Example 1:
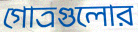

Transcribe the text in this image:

গোত্রগুলোর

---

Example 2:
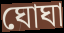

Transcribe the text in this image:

ঘোঘা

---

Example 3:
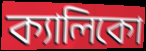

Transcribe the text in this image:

ক্যালিকো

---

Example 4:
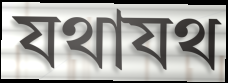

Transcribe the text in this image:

যথাযথ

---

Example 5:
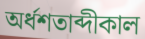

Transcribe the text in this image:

অর্ধশতাব্দীকাল